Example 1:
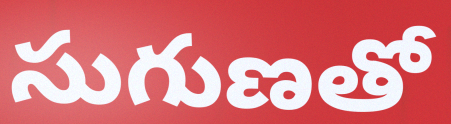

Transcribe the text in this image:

సుగుణతో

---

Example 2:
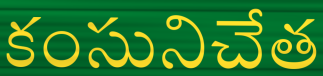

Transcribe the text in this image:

కంసునిచేత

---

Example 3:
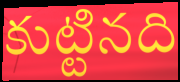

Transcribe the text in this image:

కుట్టినది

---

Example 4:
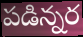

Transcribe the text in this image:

పడిన్నర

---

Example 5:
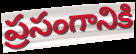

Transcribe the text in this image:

ప్రసంగానికి